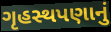
ગૃહસ્થપણાનું